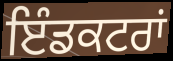
ਇੰਡਕਟਰਾਂ